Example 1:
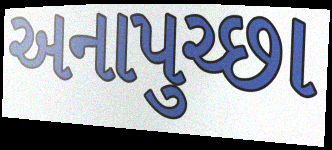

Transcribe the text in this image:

અનાપુચ્છા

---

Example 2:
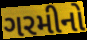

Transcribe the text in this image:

ગરમીનો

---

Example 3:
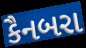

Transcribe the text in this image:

કૈનબરા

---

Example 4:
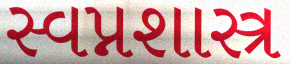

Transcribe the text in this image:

સ્વપ્નશાસ્ત્ર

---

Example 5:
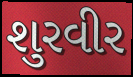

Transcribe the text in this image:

શુરવીર